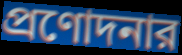
প্রণোদনার